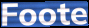
Foote